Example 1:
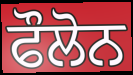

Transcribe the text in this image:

ਫੌਲੋਨ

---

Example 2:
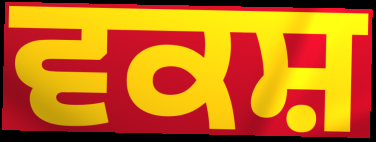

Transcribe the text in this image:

ਵਕਸ਼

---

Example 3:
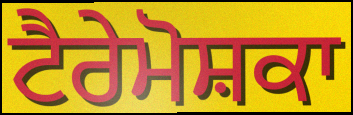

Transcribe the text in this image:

ਟੈਰੇਮੋਸ਼ਕਾ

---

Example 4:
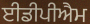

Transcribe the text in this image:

ਈਡੀਪੀਐਮ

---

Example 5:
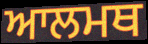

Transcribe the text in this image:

ਆਲਮਥ